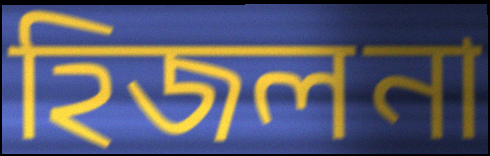
হিজলনা